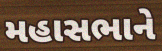
મહાસભાને